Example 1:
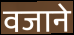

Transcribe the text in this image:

वजाने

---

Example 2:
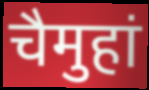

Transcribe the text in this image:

चैमुहां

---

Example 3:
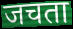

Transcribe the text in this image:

जचता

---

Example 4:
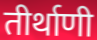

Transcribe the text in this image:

तीर्थाणी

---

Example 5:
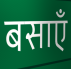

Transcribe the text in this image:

बसाएँ